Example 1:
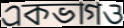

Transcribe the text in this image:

একভাগও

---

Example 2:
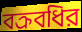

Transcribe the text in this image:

বক্রবধির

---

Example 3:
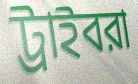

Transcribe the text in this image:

ট্রাইবরা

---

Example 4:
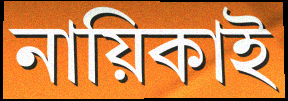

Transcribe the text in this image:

নায়িকাই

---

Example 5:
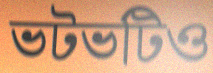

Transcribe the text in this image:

ভটভটিও